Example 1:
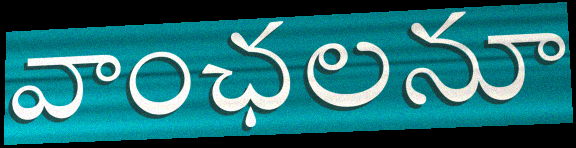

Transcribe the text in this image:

వాంఛలనూ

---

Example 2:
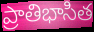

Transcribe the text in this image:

ప్రాతిభాసిత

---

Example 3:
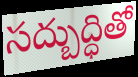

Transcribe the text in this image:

సద్బుద్ధితో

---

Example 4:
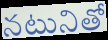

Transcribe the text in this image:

నటునితో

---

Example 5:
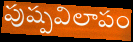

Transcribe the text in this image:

పుష్పవిలాపం